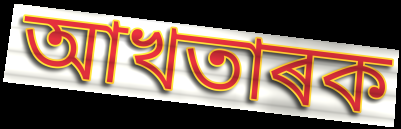
আখতাৰক